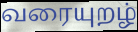
வரையுறழ்